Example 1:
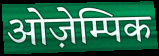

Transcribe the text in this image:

ओज़ेम्पिक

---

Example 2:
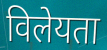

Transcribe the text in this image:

विलेयता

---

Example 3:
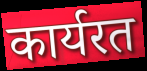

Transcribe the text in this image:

कार्यरत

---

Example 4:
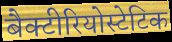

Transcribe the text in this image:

बैक्टीरियोस्टेटिक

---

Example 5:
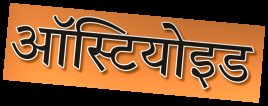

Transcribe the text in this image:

ऑस्टियोइड